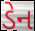
ડેન